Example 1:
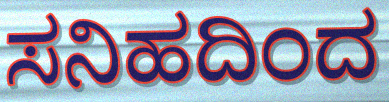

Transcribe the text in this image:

ಸನಿಹದಿಂದ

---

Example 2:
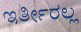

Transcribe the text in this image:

ಇರ್ತೀರಲ್ಲ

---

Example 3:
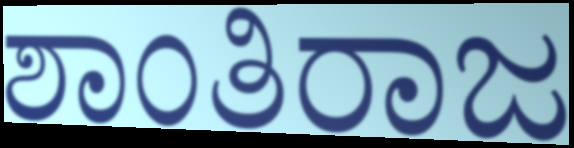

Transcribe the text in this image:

ಶಾಂತಿರಾಜ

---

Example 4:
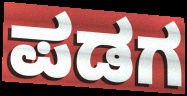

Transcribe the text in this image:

ಪಡಗ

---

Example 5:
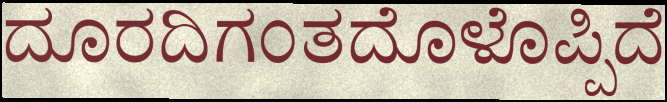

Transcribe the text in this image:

ದೂರದಿಗಂತದೊಳೊಪ್ಪಿದೆ